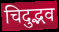
चिदुद्भव